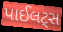
પાઈલટ્સ